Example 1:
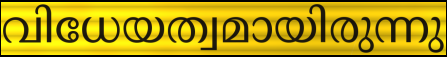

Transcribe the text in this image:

വിധേയത്വമായിരുന്നു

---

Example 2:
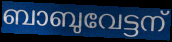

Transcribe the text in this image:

ബാബുവേട്ടന്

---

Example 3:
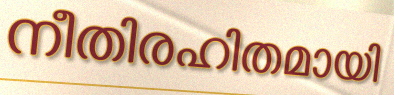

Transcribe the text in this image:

നീതിരഹിതമായി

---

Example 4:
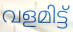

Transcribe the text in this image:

വളമിട്ട്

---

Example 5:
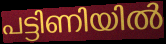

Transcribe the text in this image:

പട്ടിണിയിൽ